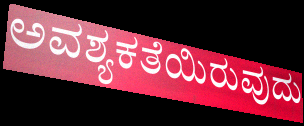
ಅವಶ್ಯಕತೆಯಿರುವುದು